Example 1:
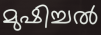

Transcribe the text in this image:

മുഷിച്ചൽ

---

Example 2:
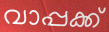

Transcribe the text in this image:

വാപ്പക്ക്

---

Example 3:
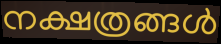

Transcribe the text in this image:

നക്ഷത്രങ്ങൾ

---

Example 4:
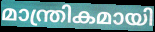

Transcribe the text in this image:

മാന്ത്രികമായി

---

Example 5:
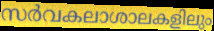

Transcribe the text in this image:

സർവകലാശാലകളിലും